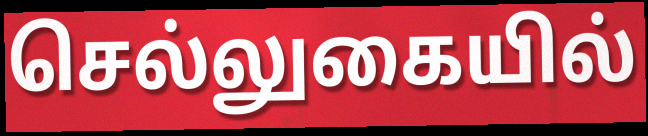
செல்லுகையில்